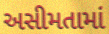
અસીમતામાં